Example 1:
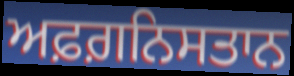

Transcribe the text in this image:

ਅਫ਼ਗ਼ਨਿਸਤਾਨ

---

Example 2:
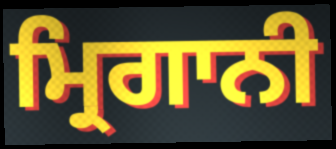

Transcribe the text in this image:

ਮ੍ਰਿਗਾਨੀ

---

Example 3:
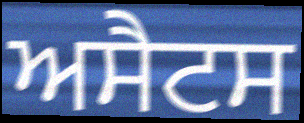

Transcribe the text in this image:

ਅਸੈਟਸ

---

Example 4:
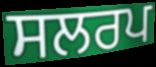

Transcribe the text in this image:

ਸਲਰਪ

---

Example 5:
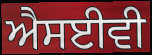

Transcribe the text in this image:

ਐਸਈਵੀ